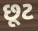
છૂટ